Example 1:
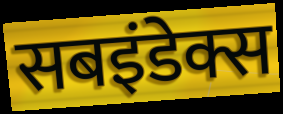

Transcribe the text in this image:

सबइंडेक्स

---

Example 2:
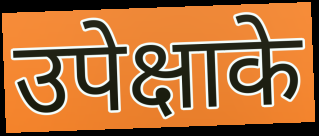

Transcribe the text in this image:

उपेक्षाके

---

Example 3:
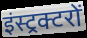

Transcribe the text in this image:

इंस्ट्रक्टरों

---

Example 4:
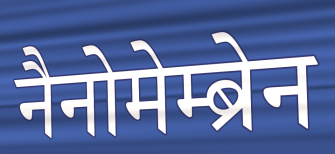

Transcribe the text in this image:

नैनोमेम्ब्रेन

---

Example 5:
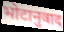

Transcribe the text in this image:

भोटानुवाद